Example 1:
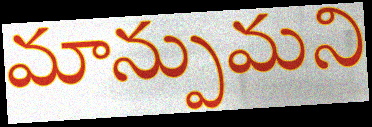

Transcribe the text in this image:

మాన్పుమని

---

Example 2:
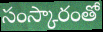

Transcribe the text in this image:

సంస్కారంతో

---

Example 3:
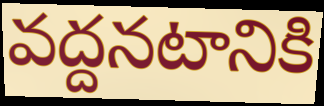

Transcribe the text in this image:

వద్దనటానికి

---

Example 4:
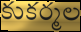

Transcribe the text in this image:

కుకర్మల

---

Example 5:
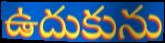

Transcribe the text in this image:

ఉదుకును